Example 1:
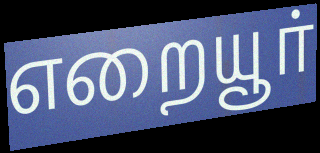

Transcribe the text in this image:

எறையூர்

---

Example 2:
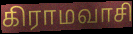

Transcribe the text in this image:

கிராமவாசி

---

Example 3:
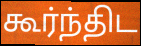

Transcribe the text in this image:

கூர்ந்திட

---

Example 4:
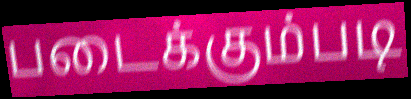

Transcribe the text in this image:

படைக்கும்படி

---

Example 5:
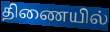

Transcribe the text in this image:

திணையில்